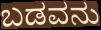
ಬಡವನು